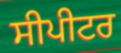
ਸੀਪੀਟਰ